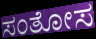
ಸಂತೋಸ